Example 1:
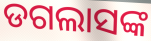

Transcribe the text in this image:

ଡଗଲାସଙ୍କ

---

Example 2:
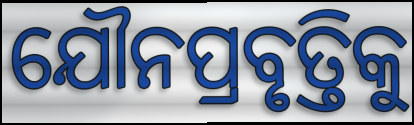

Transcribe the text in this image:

ଯୌନପ୍ରବୃତ୍ତିକୁ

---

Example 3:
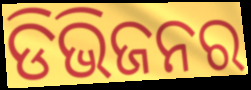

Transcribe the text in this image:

ଡିଭିଜନର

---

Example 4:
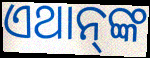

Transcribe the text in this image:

ଏଥାନ୍‍ଙ୍କ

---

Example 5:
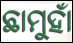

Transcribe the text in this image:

ଛାମୁହାଁ